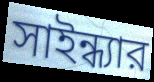
সাইন্ধ্যার